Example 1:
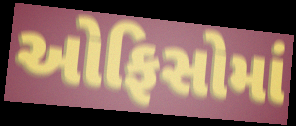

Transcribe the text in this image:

ઓફિસોમાં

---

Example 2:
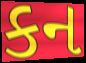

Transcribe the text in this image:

કન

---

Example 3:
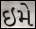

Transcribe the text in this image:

ઇમે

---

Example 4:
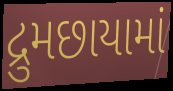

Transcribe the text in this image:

દ્રુમછાયામાં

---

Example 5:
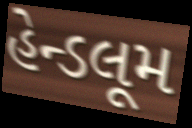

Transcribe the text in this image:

હેન્ડલૂમ